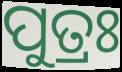
ପୁତ୍ରଃ